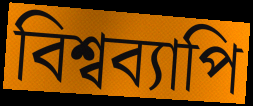
বিশ্বব্যাপি